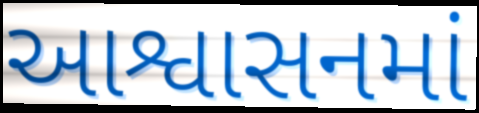
આશ્વાસનમાં